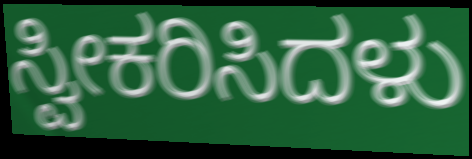
ಸ್ವೀಕರಿಸಿದಳು